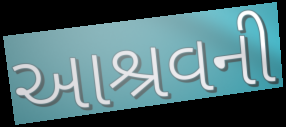
આશ્રવની